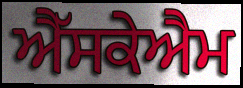
ਐੱਸਕੇਐਮ